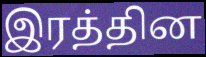
இரத்தின